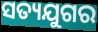
ସତ୍ୟଯୁଗର